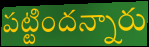
పట్టిందన్నారు